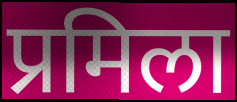
प्रमिला